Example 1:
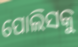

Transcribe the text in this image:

ପୋଲିସକୁ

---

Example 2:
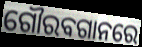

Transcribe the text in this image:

ଗୌରବଗାନରେ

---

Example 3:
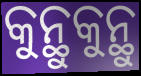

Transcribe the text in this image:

କୁନ୍ଥୁକୁନ୍ଥୁ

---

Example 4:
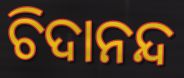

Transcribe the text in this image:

ଚିଦାନନ୍ଦ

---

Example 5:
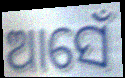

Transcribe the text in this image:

ଆସେଁ